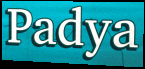
Padya